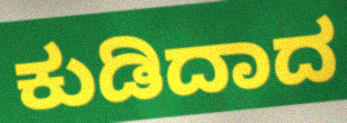
ಕುಡಿದಾದ